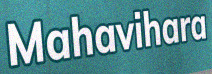
Mahavihara